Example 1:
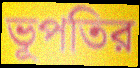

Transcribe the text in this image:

ভূপতির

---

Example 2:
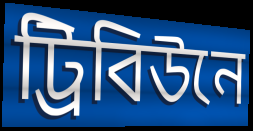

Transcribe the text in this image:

ট্রিবিউনে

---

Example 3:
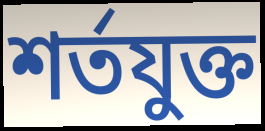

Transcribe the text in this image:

শর্তযুক্ত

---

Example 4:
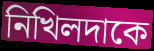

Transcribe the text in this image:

নিখিলদাকে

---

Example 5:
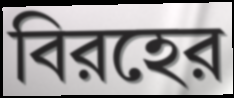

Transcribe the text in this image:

বিরহের